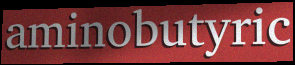
aminobutyric